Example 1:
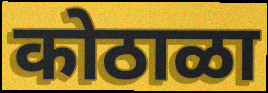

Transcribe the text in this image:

कोठाळा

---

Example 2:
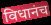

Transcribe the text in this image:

विधानंच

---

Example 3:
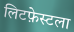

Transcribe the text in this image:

लिटफ़ेस्टला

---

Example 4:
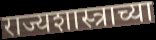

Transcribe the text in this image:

राज्यशास्त्राच्या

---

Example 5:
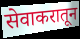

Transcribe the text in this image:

सेवाकरातून